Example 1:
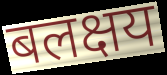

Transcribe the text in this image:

बलक्षय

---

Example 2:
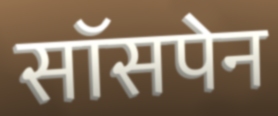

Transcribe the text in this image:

सॉसपेन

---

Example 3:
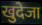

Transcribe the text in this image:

खुदेजा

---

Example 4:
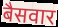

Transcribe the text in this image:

बैसवार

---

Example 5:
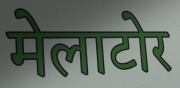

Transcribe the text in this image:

मेलाटोर